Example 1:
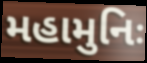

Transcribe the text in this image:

મહામુનિઃ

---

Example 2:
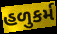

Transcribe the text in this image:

હળુકર્મ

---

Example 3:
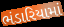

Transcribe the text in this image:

ભંડારિયામાં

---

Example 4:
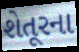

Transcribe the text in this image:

શેતૂરના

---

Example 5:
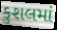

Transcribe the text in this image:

કુશલમાં